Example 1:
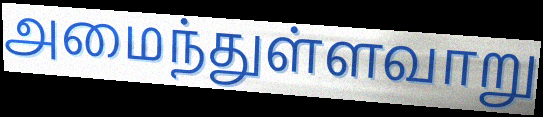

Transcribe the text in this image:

அமைந்துள்ளவாறு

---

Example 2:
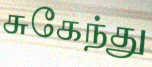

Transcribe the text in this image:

சுகேந்து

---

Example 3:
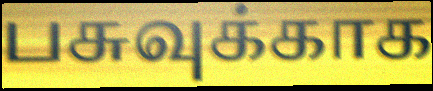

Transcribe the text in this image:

பசுவுக்காக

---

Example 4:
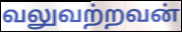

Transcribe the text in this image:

வலுவற்றவன்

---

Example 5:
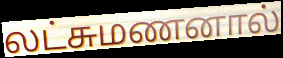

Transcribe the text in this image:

லட்சுமணனால்